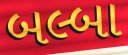
બલ્બા